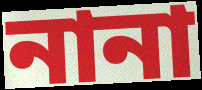
নানা